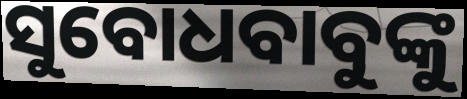
ସୁବୋଧବାବୁଙ୍କୁ